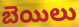
బెయిలు